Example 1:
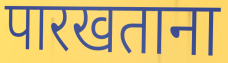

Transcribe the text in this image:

पारखताना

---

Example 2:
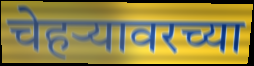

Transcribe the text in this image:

चेहर्‍यावरच्या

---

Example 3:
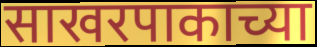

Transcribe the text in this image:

साखरपाकाच्या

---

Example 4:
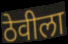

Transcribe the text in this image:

ठेवीला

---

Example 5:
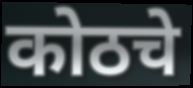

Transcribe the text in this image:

कोठचे